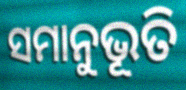
ସମାନୁଭୂତି